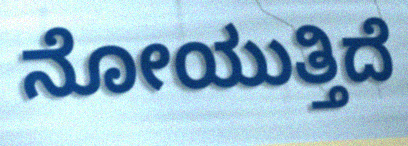
ನೋಯುತ್ತಿದೆ